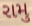
રામુ